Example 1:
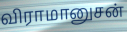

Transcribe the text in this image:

விராமானுசன்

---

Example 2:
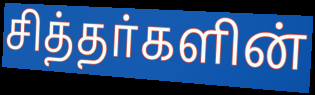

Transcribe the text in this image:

சித்தர்களின்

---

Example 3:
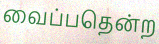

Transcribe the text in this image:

வைப்பதென்ற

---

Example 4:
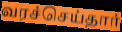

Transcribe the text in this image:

வரச்செய்தார்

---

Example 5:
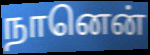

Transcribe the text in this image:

நானென்